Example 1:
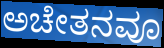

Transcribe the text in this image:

ಅಚೇತನವೂ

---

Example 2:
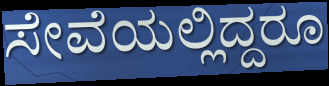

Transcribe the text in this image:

ಸೇವೆಯಲ್ಲಿದ್ದರೂ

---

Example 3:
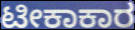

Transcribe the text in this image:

ಟೀಕಾಕಾರ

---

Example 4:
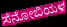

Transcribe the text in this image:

ಸೆನೋಬಿಯಳ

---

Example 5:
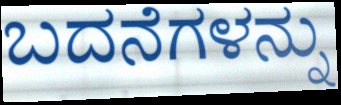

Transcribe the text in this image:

ಬದನೆಗಳನ್ನು